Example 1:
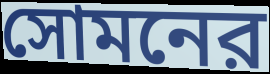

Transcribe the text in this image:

সোমনের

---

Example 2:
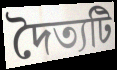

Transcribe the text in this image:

দৈত্যটি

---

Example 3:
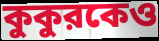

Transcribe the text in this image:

কুকুরকেও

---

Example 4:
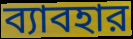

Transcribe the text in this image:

ব্যাবহার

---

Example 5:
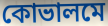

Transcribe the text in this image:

কোভালমে